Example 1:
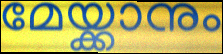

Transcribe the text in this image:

മേയ്ക്കാനും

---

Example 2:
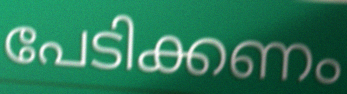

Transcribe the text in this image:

പേടിക്കണം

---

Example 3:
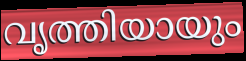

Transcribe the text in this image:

വൃത്തിയായും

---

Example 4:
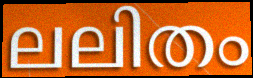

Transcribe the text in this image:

ലലിതം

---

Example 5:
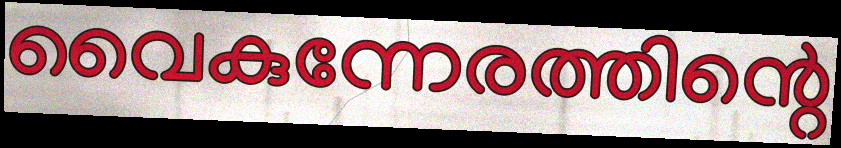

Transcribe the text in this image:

വൈകുന്നേരത്തിന്റെ